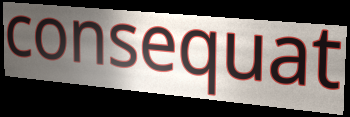
consequat